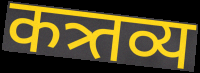
कत्र्तव्य